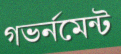
গভর্নমেন্ট